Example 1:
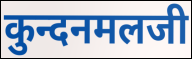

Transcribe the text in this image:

कुन्दनमलजी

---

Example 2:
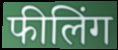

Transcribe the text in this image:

फीलिंग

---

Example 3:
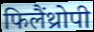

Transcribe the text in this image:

फिलैंथ्रोपी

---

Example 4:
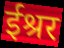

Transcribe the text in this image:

ईश्रर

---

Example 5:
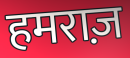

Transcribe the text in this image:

हमराज़